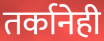
तर्कानेही